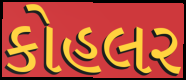
કોહલર